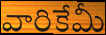
వారికేమీ